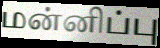
மன்னிப்பு